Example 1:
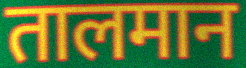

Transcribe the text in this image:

तालमान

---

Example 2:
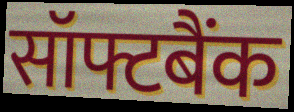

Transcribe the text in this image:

सॉफ्टबैंक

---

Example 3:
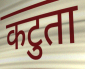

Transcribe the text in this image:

कटुता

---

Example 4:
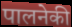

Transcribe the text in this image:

पालनेकी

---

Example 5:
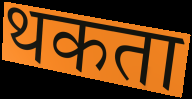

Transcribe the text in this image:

थकता